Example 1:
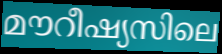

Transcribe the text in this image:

മൗറീഷ്യസിലെ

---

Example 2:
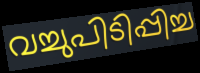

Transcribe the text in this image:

വച്ചുപിടിപ്പിച്ച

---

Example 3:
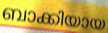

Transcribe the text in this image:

ബാക്കിയായ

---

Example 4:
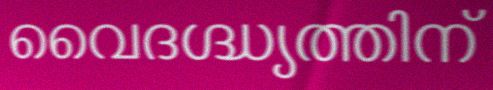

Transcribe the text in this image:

വൈദഗ്ദ്ധ്യത്തിന്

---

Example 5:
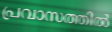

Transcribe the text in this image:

പ്രവാസത്തിൽ